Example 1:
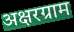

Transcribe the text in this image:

अक्षरग्राम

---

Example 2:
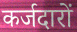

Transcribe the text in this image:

कर्जदारों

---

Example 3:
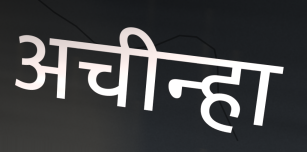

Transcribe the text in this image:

अचीन्हा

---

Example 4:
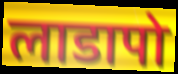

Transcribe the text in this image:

लाडापो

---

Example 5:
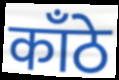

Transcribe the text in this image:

काँठे